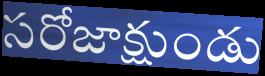
సరోజాక్షుండు